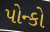
પોન્કો